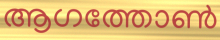
ആഗത്തോൺ